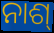
ନାଶ୍